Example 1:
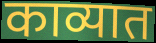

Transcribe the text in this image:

काव्यात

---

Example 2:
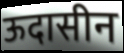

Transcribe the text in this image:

ऊदासीन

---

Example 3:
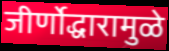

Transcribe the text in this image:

जीर्णोद्धारामुळे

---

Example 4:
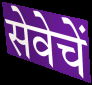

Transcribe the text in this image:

सेवेचें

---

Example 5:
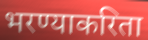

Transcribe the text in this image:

भरण्याकरिता